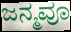
ಜನ್ಮವೂ